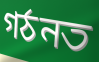
গঠনত